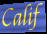
Calif